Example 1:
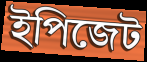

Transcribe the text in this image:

ইপিজেট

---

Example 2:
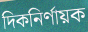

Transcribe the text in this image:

দিকনির্ণায়ক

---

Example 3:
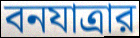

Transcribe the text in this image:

বনযাত্রার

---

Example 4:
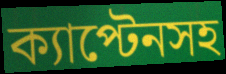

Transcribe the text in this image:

ক্যাপ্টেনসহ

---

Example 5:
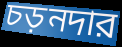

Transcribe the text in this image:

চড়নদার